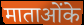
माताओंके